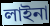
লাইনা